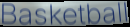
Basketball